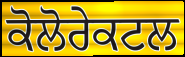
ਕੋਲੋਰੇਕਟਲ